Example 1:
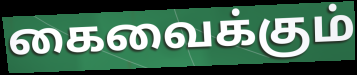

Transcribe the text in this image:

கைவைக்கும்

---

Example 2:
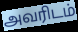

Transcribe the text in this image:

அவரிடம்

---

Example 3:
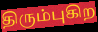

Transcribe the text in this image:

திரும்புகிற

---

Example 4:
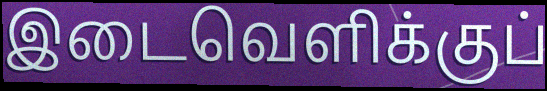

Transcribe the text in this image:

இடைவெளிக்குப்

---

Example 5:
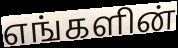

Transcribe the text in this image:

எங்களின்